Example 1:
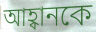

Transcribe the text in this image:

আহ্বানকে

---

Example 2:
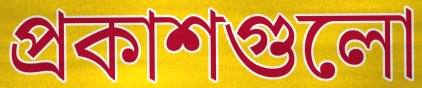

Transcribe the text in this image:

প্রকাশগুলো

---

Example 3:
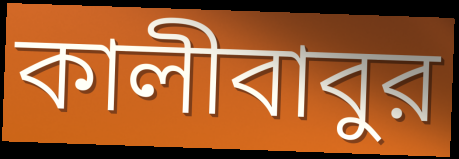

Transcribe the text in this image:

কালীবাবুর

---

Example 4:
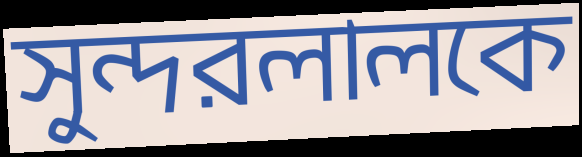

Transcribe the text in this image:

সুন্দরলালকে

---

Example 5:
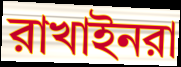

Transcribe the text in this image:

রাখাইনরা